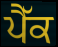
ਪੈੱਕ